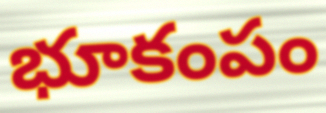
భూకంపం